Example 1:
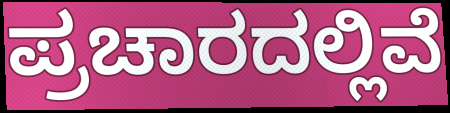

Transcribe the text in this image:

ಪ್ರಚಾರದಲ್ಲಿವೆ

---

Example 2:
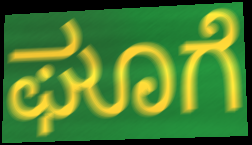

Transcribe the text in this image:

ಘೂಗೆ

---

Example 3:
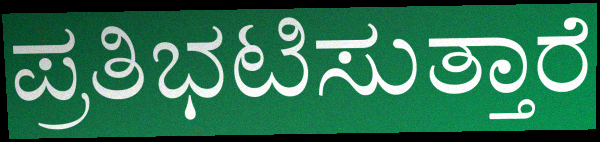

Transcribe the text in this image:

ಪ್ರತಿಭಟಿಸುತ್ತಾರೆ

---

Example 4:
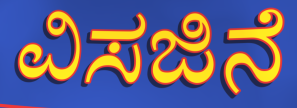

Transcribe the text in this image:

ವಿಸಜಿನೆ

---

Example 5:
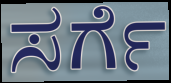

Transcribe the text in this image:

ಸರ್ಗೆ